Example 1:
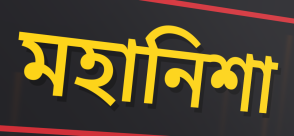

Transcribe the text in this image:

মহানিশা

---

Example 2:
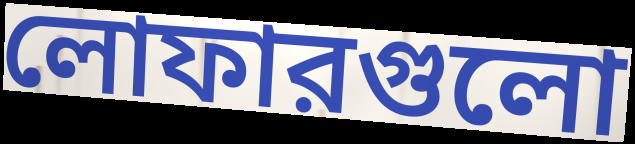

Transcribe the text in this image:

লোফারগুলো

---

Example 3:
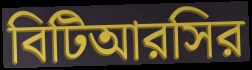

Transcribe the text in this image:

বিটিআরসির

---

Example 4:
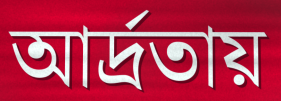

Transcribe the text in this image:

আর্দ্রতায়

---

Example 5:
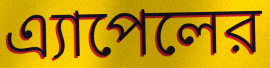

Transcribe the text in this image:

এ্যাপেলের